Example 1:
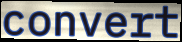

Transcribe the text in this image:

convert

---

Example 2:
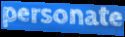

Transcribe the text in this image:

personate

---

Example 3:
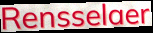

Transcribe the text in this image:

Rensselaer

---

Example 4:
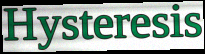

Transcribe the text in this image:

Hysteresis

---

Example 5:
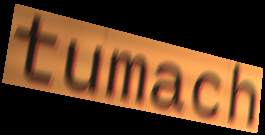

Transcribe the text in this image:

tumach